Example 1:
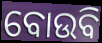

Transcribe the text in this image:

ବୋଉବି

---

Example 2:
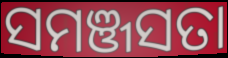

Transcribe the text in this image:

ସମଞ୍ଜସତା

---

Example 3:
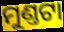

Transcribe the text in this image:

ମୁଣ୍ତଟା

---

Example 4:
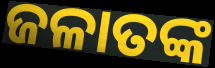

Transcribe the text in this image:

ଜଳାତଙ୍କ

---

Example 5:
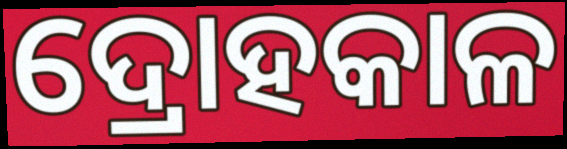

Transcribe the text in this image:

ଦ୍ରୋହକାଳ